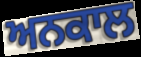
ਅਨਕਾਲ